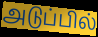
அடுப்பில்